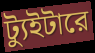
ট্যুইটারে